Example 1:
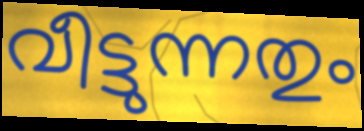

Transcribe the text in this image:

വീട്ടുന്നതും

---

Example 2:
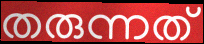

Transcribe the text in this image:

തരുന്നത്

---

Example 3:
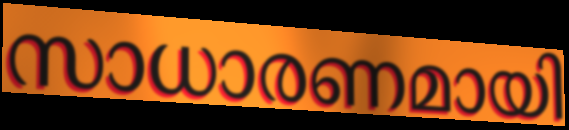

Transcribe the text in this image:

സാധാരണമായി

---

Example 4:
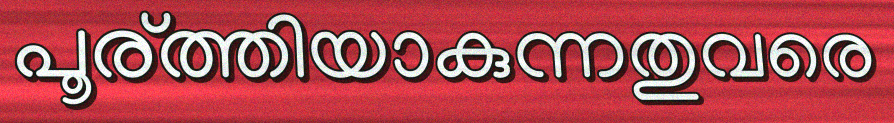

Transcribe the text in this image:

പൂര്ത്തിയാകുന്നതുവരെ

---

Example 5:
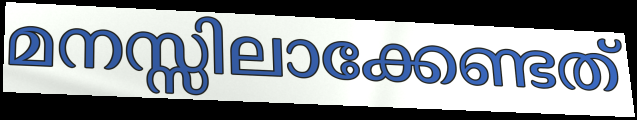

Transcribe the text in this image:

മനസ്സിലാക്കേണ്ടത്